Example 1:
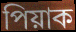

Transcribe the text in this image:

পিয়াক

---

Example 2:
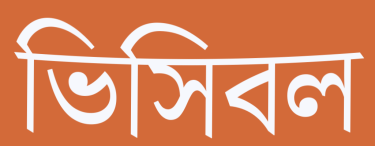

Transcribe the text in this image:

ভিসিবল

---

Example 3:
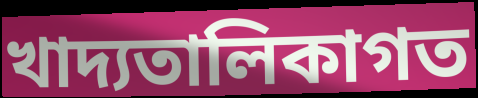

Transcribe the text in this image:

খাদ্যতালিকাগত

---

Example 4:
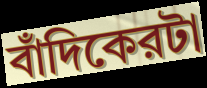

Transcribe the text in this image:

বাঁদিকেরটা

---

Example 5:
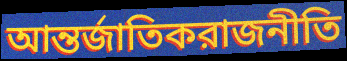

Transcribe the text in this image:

আন্তর্জাতিকরাজনীতি